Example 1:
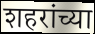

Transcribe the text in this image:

शहरांच्या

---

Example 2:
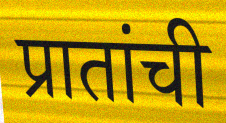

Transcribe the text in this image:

प्रातांची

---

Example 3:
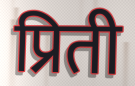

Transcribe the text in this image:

प्रिती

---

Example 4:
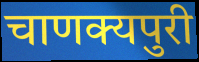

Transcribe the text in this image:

चाणक्यपुरी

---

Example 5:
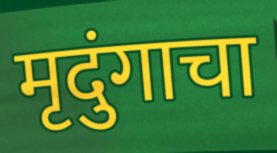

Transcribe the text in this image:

मृदुंगाचा